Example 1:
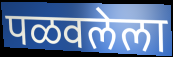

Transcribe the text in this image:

पळवलेला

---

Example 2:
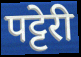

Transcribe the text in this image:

पट्टेरी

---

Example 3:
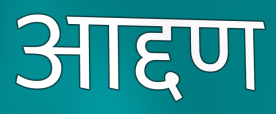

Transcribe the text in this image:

आद्दण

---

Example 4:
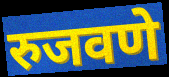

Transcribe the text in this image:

रुजवणे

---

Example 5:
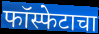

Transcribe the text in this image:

फॉस्फेटाचा